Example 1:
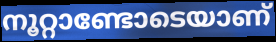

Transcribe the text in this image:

നൂറ്റാണ്ടോടെയാണ്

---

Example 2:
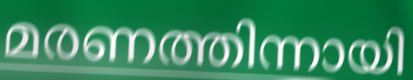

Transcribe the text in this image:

മരണത്തിന്നായി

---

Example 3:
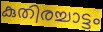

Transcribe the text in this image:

കുതിരച്ചാട്ടം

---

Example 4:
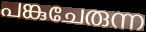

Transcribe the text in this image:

പങ്കുചേരുന്ന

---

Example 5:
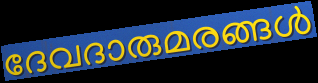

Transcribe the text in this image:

ദേവദാരുമരങ്ങൾ